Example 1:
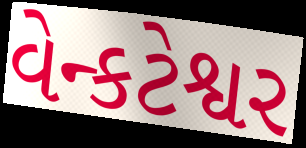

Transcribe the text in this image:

વેન્કટેશ્વર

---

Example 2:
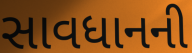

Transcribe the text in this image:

સાવધાનની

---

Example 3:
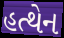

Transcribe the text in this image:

હત્થેન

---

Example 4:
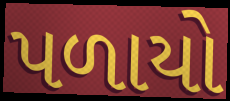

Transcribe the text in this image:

પળાયો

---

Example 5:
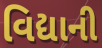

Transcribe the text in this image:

વિદ્યાની